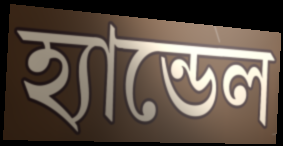
হ্যান্ডেল